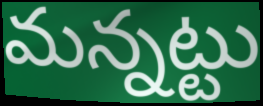
మన్నట్టు